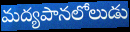
మద్యపానలోలుడు